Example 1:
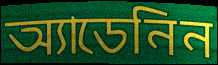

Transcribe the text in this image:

অ্যাডেনিন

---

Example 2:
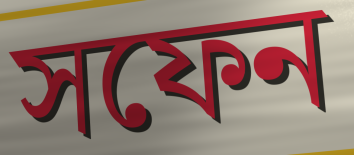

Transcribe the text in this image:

সফেন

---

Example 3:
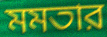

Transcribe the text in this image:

মমতার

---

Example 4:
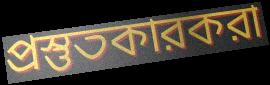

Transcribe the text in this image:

প্রস্তুতকারকরা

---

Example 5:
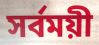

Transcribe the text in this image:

সর্বময়ী